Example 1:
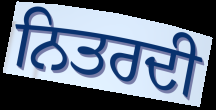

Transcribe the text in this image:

ਨਿਤਰਦੀ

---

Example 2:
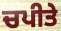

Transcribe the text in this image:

ਚਪੀਤੇ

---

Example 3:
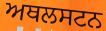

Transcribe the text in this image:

ਅਥਲਸਟਨ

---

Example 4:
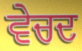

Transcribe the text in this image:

ਵੇਚਦ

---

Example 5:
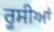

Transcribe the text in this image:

ਰੂਸੀਆਂ